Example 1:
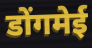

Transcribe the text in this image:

डोंगमेई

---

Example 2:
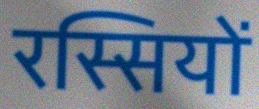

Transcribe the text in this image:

रस्सियों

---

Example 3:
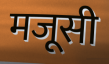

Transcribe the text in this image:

मजूसी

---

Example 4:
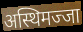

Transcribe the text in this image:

अस्थिमज्जा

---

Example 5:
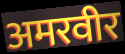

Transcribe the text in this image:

अमरवीर